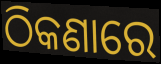
ଠିକଣାରେ